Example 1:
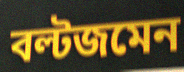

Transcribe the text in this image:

বল্টজমেন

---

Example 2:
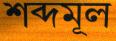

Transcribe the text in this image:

শব্দমূল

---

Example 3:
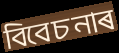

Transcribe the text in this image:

বিবেচনাৰ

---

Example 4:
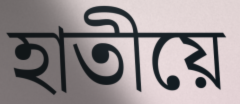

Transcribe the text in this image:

হাতীয়ে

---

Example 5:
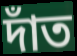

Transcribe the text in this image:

দাঁত